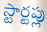
స్టార్టప్లు